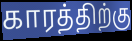
காரத்திற்கு